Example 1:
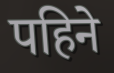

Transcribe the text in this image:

पहिने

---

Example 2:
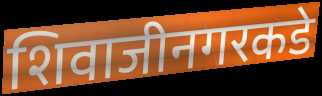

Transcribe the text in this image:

शिवाजीनगरकडे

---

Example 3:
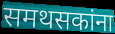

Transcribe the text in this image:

समथसकांना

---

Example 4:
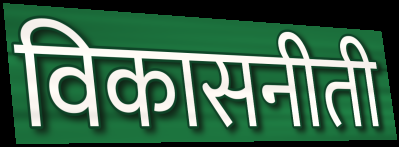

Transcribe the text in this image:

विकासनीती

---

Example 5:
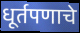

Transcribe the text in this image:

धूर्तपणाचे